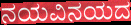
ನಯವಿನಯದ